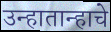
उन्हातान्हाचे